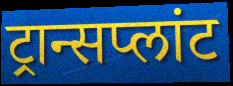
ट्रान्सप्लांट